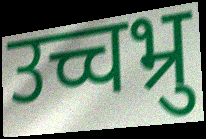
उच्चभ्रु